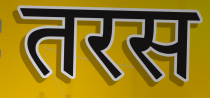
तरस